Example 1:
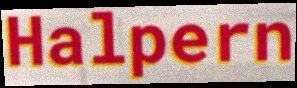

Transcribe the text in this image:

Halpern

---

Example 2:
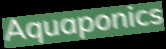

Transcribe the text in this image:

Aquaponics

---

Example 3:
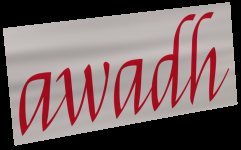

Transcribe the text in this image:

awadh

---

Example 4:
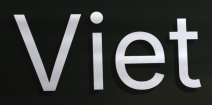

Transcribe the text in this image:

Viet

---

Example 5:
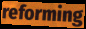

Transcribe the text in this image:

reforming